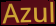
Azul